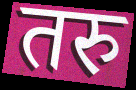
तरु